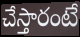
చేస్తారంటే